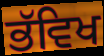
ਭੱਵਿਖ